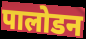
पालोडन